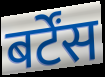
बर्टेंस